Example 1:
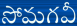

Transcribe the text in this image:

సోమగవీ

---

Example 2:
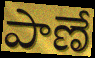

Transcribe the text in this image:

పాణే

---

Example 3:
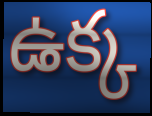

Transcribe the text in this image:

ఉక్క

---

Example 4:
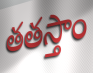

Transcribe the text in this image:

తతస్తాం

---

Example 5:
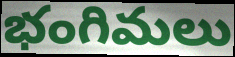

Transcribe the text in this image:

భంగిమలు